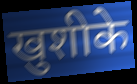
खुशीके